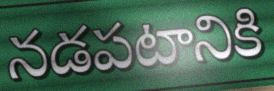
నడపటానికి